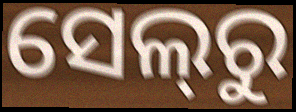
ସେଲ୍‌ରୁ